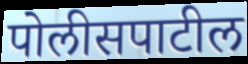
पोलीसपाटील